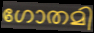
ഗോതമി